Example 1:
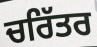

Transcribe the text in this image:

ਚਰਿੱਤਰ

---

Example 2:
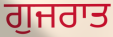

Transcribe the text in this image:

ਗੁਜਰਾਤ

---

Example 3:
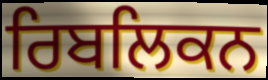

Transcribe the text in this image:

ਰਿਬਲਿਕਨ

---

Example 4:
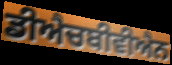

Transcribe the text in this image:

ਡੀਐਚਬੀਵੀਐਨ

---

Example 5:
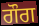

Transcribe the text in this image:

ਗੌਗ